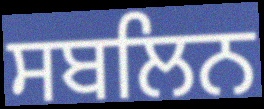
ਸਬਲਿਨ